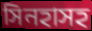
সিনহাসহ